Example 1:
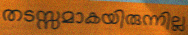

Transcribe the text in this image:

തടസ്സമാകയിരുന്നില്ല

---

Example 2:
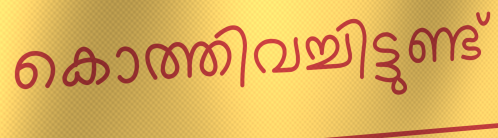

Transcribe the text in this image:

കൊത്തിവച്ചിട്ടുണ്ട്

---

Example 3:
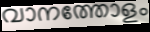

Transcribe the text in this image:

വാനത്തോളം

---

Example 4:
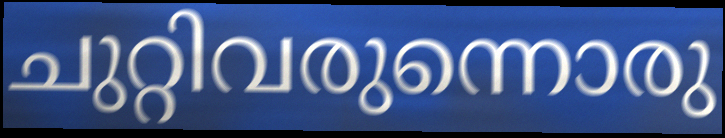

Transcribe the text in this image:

ചുറ്റിവരുന്നൊരു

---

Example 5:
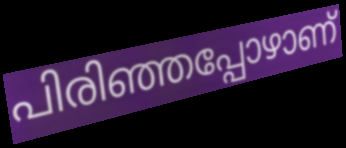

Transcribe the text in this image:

പിരിഞ്ഞപ്പോഴാണ്